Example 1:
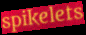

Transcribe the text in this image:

spikelets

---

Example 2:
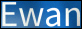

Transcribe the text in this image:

Ewan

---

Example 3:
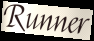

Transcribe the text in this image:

Runner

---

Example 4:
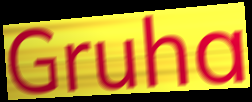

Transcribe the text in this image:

Gruha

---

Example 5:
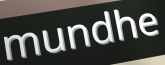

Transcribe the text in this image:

mundhe